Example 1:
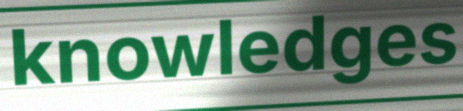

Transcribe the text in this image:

knowledges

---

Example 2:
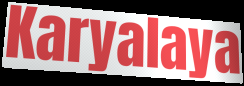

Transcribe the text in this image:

Karyalaya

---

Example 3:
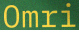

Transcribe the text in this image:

Omri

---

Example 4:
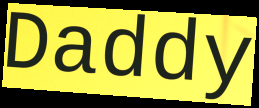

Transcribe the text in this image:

Daddy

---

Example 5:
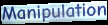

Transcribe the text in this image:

Manipulation